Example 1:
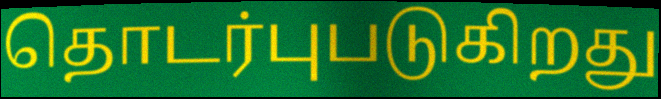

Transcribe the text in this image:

தொடர்புபடுகிறது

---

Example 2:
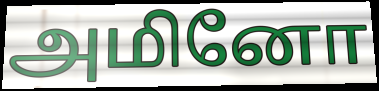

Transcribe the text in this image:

அமினோ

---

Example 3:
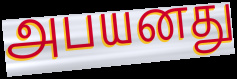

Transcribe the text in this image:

அபயனது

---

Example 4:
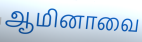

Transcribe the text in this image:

ஆமினாவை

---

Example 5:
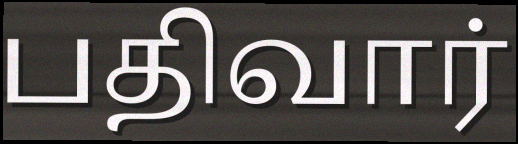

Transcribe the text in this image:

பதிவார்